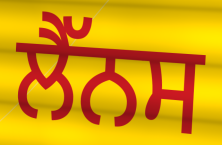
ਲੈੱਨਸ